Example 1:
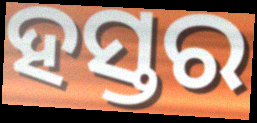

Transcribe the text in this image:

ହସ୍ତର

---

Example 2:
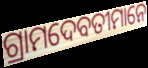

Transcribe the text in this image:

ଗ୍ରାମଦେବତୀମାନେ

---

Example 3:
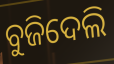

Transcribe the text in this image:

ବୁଜିଦେଲି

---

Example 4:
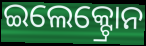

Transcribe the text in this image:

ଇଲେକ୍ଟ୍ରୋନ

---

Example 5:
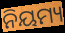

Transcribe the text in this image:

ନିୟମ୍ୟ